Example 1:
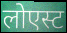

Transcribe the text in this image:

लोएस्ट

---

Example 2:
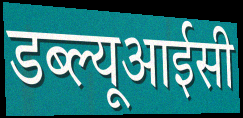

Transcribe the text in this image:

डब्ल्यूआईसी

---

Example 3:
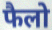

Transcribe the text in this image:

फैलो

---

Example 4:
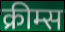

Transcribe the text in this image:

क्रीम्‍स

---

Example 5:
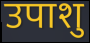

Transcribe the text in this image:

उपाशु